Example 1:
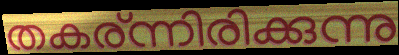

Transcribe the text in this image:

തകര്ന്നിരിക്കുന്നു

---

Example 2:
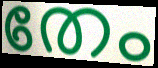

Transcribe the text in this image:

തേം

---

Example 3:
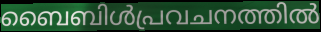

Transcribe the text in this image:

ബൈബിൾപ്രവചനത്തിൽ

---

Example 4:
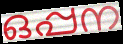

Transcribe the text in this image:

ഒപ്പന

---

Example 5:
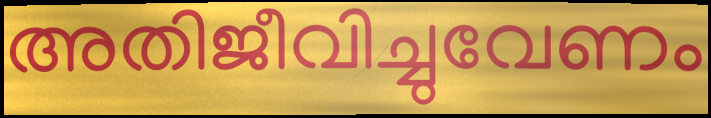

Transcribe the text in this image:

അതിജീവിച്ചുവേണം